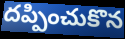
దప్పించుకొన